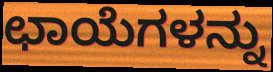
ಛಾಯೆಗಳನ್ನು